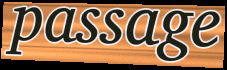
passage